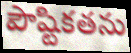
పౌష్టికతను